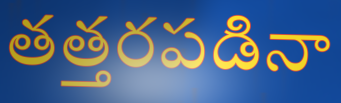
తత్తరపడినా